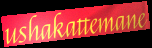
ushakattemane